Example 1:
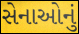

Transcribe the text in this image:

સેનાઓનું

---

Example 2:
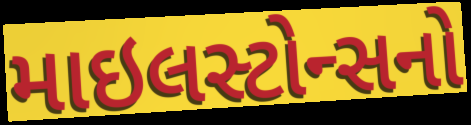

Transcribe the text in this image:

માઇલસ્ટોન્સનો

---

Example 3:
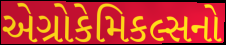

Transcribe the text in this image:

એગ્રોકેમિકલ્સનો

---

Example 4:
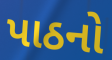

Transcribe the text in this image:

પાઠનો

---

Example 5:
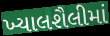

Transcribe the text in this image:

ખ્યાલશૈલીમાં